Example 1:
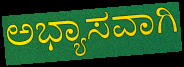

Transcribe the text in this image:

ಅಭ್ಯಾಸವಾಗಿ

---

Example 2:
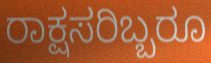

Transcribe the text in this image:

ರಾಕ್ಷಸರಿಬ್ಬರೂ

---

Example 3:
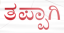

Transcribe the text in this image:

ತಪ್ಪಾಗಿ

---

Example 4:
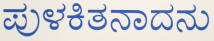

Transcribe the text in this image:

ಪುಳಕಿತನಾದನು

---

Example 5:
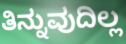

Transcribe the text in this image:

ತಿನ್ನುವುದಿಲ್ಲ